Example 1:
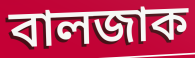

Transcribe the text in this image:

বালজাক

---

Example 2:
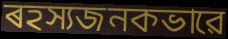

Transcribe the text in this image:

ৰহস্যজনকভাৱে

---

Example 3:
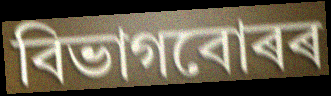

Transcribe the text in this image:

বিভাগবোৰৰ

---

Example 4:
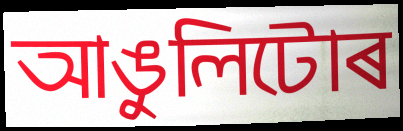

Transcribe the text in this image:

আঙুলিটোৰ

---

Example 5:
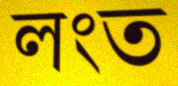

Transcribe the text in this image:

লংত